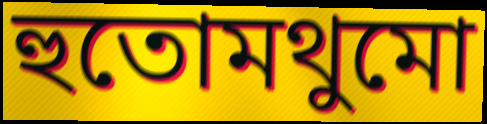
হুতোমথুমো